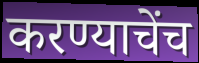
करण्याचेंच